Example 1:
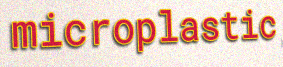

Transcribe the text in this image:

microplastic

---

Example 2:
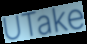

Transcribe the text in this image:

UTake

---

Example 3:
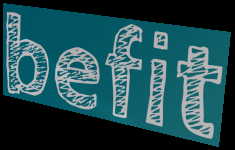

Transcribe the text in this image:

befit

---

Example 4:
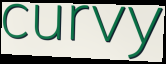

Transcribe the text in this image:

curvy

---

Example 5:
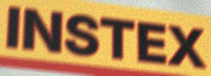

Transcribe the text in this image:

INSTEX